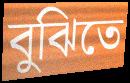
বুঝিতে